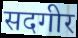
सदगीर